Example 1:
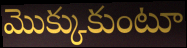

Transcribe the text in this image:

మొక్కుకుంటూ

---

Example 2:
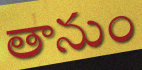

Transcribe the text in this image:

తానుం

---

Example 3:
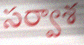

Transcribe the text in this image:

సర్వాశ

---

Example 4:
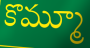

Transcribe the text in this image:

కొమ్మూ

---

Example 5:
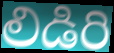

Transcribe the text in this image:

లిడిరి